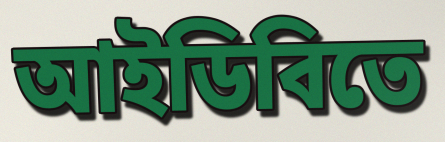
আইডিবিতে